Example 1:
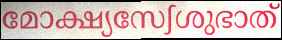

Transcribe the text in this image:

മോക്ഷ്യസേഽശുഭാത്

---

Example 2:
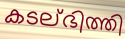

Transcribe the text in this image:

കടല്ഭിത്തി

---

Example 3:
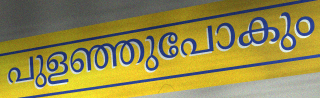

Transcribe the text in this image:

പുളഞ്ഞുപോകും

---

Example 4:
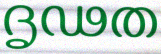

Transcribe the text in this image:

ദൃഢത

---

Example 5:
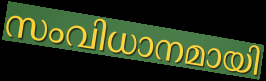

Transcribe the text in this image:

സംവിധാനമായി